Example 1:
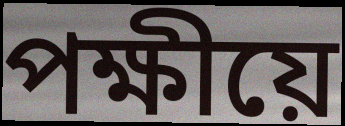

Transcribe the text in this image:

পক্ষীয়ে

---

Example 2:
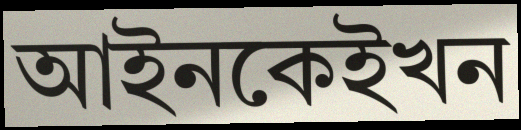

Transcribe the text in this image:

আইনকেইখন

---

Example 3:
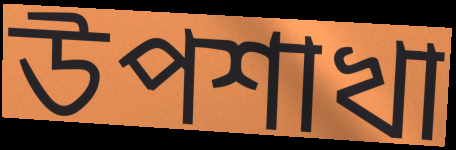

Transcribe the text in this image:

উপশাখা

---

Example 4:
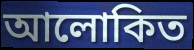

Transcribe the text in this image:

আলোকিত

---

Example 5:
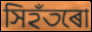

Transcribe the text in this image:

সিহঁতৰো